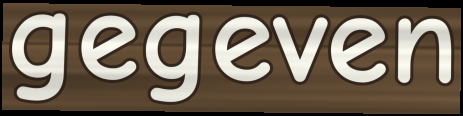
gegeven